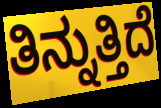
ತಿನ್ನುತ್ತಿದೆ